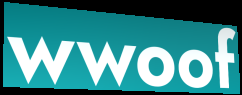
wwoof